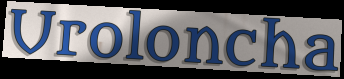
Uroloncha